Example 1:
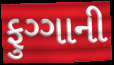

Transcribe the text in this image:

ફુગ્ગાની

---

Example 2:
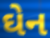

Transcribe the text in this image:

ઘેન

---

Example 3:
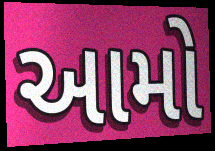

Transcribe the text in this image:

આમો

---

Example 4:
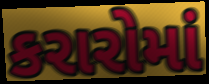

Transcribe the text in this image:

કરારોમાં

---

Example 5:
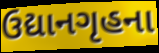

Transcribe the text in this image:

ઉદ્યાનગૃહના